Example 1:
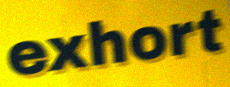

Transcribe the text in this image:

exhort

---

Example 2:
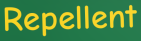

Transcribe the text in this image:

Repellent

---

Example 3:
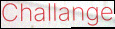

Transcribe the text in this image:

Challange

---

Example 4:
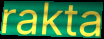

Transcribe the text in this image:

rakta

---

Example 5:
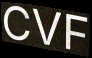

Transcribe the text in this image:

CVF